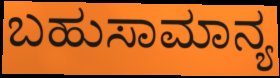
ಬಹುಸಾಮಾನ್ಯ